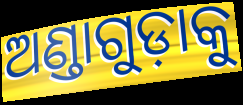
ଅଣ୍ଡାଗୁଡ଼ାକୁ